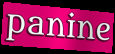
panine